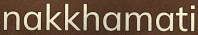
nakkhamati